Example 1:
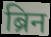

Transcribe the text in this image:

ब्रिन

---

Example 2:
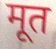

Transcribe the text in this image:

मूत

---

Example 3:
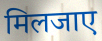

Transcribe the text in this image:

मिलजाए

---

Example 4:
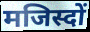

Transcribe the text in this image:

मजिस्दों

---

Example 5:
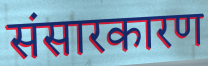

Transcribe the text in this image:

संसारकारण